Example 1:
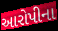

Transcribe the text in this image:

આરોપીના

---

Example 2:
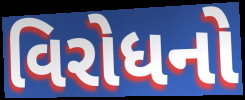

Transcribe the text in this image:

વિરોધનો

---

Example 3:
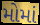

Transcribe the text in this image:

મોમાં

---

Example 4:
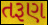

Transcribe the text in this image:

તરૂણ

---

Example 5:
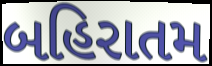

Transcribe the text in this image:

બહિરાતમ